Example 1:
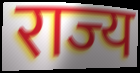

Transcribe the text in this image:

राज्‍य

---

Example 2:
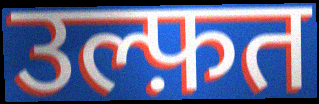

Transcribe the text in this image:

उल्फ़त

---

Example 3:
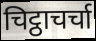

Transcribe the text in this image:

चिट्ठाचर्चा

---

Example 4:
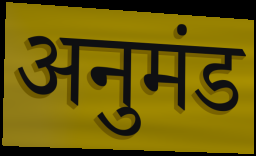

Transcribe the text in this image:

अनुमंड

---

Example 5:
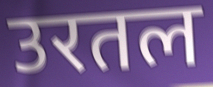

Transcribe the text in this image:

उरतल